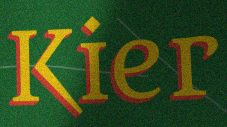
Kier